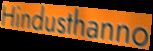
Hindusthanno